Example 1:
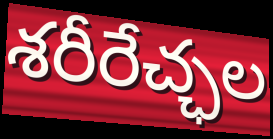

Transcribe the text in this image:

శరీరేచ్ఛల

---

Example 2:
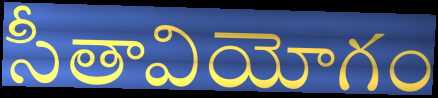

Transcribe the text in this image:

సీతావియోగం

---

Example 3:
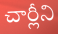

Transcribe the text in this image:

చార్లీని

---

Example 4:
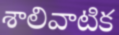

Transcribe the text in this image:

శాలివాటిక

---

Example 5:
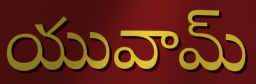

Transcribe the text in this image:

యువామ్